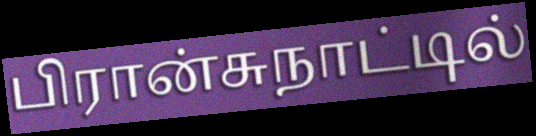
பிரான்சுநாட்டில்